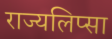
राज्यलिप्सा